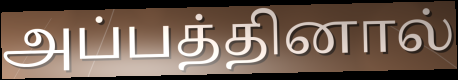
அப்பத்தினால்